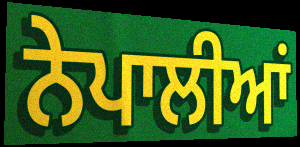
ਨੇਪਾਲੀਆਂ